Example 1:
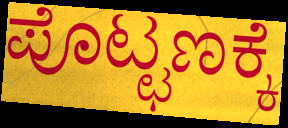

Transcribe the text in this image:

ಪೊಟ್ಟಣಕ್ಕೆ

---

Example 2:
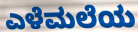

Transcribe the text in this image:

ಎಳೆಮಲೆಯ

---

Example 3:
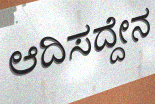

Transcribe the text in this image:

ಆದಿಸದ್ದೇನ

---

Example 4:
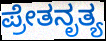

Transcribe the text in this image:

ಪ್ರೇತನೃತ್ಯ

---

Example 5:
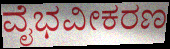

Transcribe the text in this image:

ವೈಭವೀಕರಣ